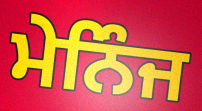
ਮੇਨਿੰਜ